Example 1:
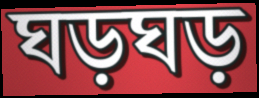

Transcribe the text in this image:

ঘড়ঘড়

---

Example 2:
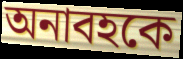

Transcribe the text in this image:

অনাবহকে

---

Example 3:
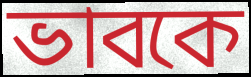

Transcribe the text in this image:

ভাবকে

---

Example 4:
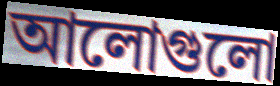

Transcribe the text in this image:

আলোগুলো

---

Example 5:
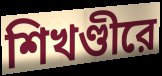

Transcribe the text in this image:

শিখণ্ডীরে